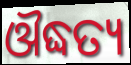
ଔଦ୍ଧତ୍ୟ